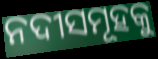
ନଦୀସମୂହକୁ